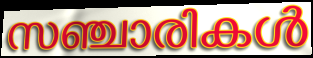
സഞ്ചാരികൾ